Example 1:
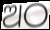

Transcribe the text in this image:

ଅଠ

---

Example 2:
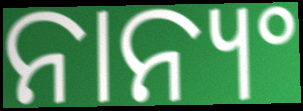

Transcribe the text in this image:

ନାନ୍ୟଂ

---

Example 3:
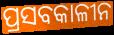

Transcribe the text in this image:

ପ୍ରସବକାଳୀନ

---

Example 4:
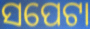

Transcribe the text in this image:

ସପେଟା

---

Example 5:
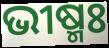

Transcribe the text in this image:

ଭୀଷ୍ମଃ